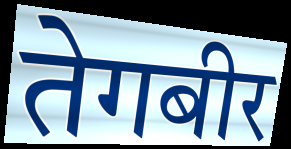
तेगबीर